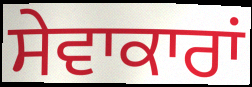
ਸੇਵਾਕਾਰਾਂ